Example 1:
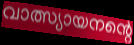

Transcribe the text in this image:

വാത്സ്യായനന്റെ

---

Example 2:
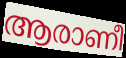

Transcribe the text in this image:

ആരാണീ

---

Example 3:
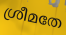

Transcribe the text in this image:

ശ്രീമതേ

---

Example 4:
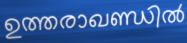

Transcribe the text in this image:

ഉത്തരാഖണ്ഡിൽ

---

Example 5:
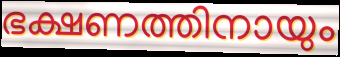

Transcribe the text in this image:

ഭക്ഷണത്തിനായും